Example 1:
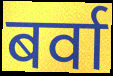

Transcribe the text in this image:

बर्वा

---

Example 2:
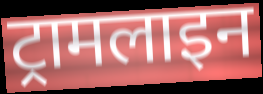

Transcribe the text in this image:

ट्रामलाइन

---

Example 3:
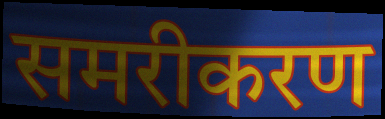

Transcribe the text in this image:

समरीकरण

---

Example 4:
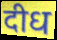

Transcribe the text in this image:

दीध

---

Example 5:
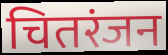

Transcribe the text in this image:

चितरंजन